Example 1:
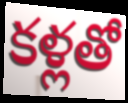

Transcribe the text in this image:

కళ్లతో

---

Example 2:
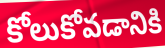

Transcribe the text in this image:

కోలుకోవడానికి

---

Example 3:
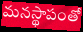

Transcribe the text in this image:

మనస్థాపంతో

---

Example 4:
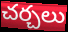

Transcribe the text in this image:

చర్చలు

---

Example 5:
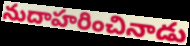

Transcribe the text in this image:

నుదాహరించినాడు